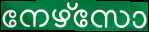
നേഴ്സോ